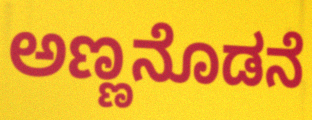
ಅಣ್ಣನೊಡನೆ